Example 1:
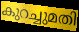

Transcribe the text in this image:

കുറച്ചുമതി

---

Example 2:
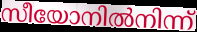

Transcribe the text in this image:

സീയോനിൽനിന്ന്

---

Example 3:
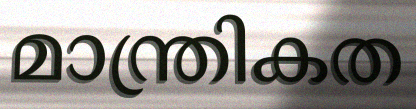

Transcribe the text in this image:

മാന്ത്രികത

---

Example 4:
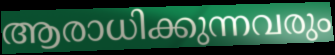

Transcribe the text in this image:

ആരാധിക്കുന്നവരും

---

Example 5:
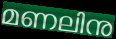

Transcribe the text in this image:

മണലിനു